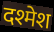
दश्मेश